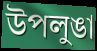
উপলুঙা